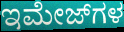
ಇಮೇಜ್‌ಗಳ